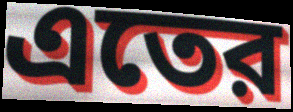
এতের